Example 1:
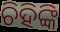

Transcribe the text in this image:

ଚିହିଙ୍କି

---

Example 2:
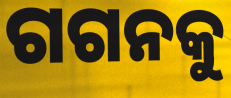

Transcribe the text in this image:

ଗଗନକୁ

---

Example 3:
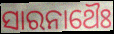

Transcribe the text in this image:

ସାରନାଥୈଃ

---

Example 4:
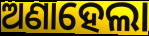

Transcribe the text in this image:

ଅଣାହେଲା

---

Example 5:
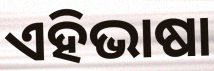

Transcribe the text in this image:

ଏହିଭାଷା